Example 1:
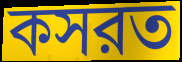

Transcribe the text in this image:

কসরত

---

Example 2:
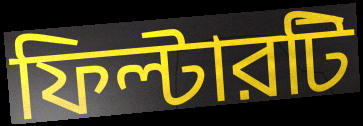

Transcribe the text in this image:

ফিল্টারটি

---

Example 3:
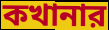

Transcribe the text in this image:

কখানার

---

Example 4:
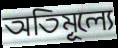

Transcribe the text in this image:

অতিমূল্যে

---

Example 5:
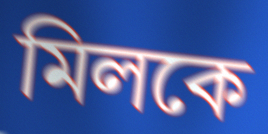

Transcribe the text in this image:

মিলকে